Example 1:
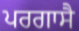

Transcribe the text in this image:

ਪਰਗਾਸੈ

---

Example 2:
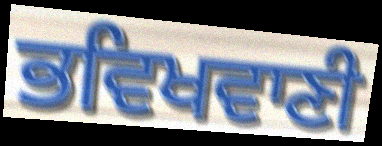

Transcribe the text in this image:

ਭਵਿਖਵਾਣੀ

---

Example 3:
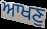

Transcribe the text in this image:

ਆਖਣੁ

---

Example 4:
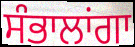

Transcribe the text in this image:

ਸੰਭਾਲਾਂਗਾ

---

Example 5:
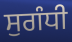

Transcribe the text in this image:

ਸੁਗੰਧੀ